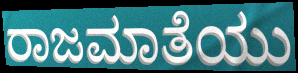
ರಾಜಮಾತೆಯು